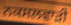
ਨਕਸਲਵਾੜੀ